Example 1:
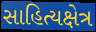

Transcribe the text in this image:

સાહિત્યક્ષેત્ર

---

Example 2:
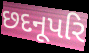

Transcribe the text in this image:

છદનૂપરિ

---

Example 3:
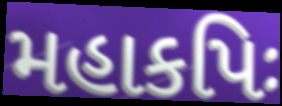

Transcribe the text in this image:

મહાકપિઃ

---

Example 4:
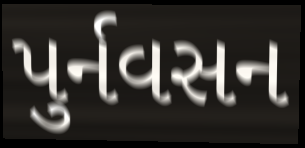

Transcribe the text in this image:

પુર્નવસન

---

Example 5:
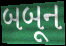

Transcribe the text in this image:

બબૂન